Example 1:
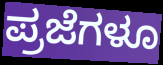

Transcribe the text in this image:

ಪ್ರಜೆಗಳೂ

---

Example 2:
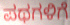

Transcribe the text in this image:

ಪಥಗಳಿಗೆ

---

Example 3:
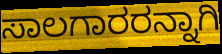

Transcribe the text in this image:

ಸಾಲಗಾರರನ್ನಾಗಿ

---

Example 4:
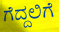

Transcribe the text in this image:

ಗೆದ್ದಲಿಗೆ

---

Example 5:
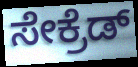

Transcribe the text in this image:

ಸೇಕ್ರೆಡ್